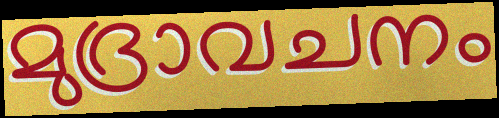
മുദ്രാവചനം